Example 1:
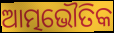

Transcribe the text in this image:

ଆତ୍ମଭୌତିକ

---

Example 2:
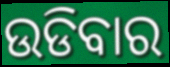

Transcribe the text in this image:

ଉଡିବାର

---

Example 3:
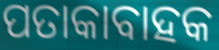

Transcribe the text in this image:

ପତାକାବାହକ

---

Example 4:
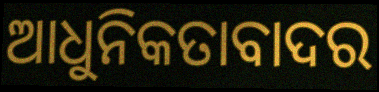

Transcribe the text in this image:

ଆଧୁନିକତାବାଦର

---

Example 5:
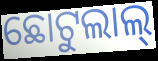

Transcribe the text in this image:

ଛୋଟୁଲାଲ୍